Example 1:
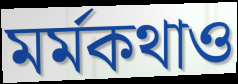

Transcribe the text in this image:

মর্মকথাও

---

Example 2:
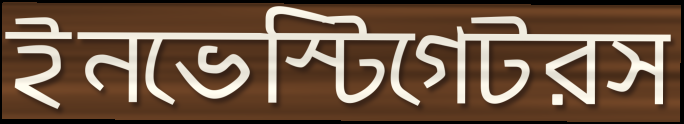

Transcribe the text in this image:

ইনভেস্টিগেটরস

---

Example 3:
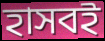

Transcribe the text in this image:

হাসবই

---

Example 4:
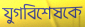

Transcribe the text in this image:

যুগবিশেষকে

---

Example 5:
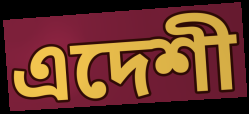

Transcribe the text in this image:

এদেশী